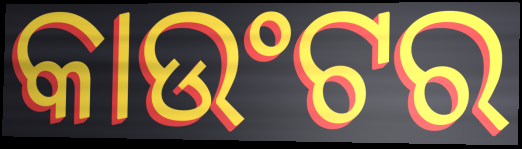
କାଉଂଟର